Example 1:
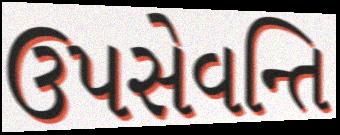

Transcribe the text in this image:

ઉપસેવન્તિ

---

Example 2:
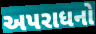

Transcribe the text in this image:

અપરાધનો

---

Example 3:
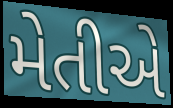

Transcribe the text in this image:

મેતીએ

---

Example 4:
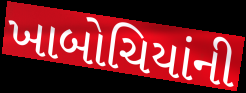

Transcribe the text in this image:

ખાબોચિયાંની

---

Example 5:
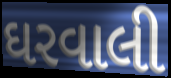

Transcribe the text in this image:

ઘરવાલી